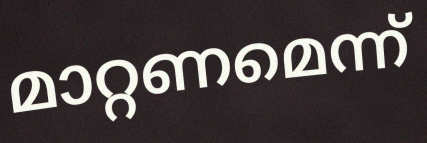
മാറ്റണമെന്ന്